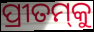
ପ୍ରୀତମ୍‌କୁ